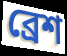
ব্রেশ